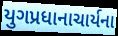
યુગપ્રધાનાચાર્યના